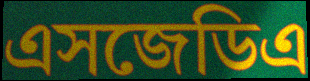
এসজেডিএ